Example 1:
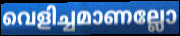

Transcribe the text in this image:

വെളിച്ചമാണല്ലോ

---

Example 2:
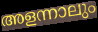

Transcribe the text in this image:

അളന്നാലും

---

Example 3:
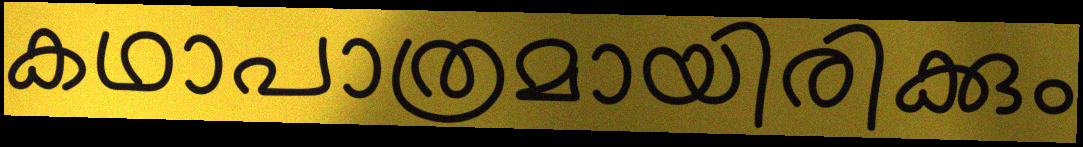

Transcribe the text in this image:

കഥാപാത്രമായിരിക്കും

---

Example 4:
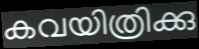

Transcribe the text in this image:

കവയിത്രിക്കു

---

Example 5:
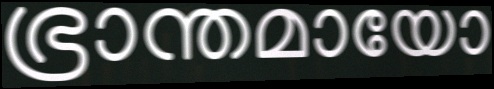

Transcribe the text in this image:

ഭ്രാന്തമായോ